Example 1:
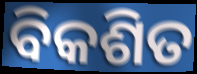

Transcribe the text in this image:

ବିକଶିତ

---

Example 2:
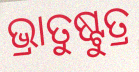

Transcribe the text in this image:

ଭ୍ରାତୁଷ୍ଟୁତ୍ର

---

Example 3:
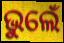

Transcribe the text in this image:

ଭୁଲେଁ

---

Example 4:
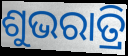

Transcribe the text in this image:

ଶୁଭରାତ୍ରି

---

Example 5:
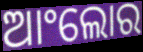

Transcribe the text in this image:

ଆଂଲୋର